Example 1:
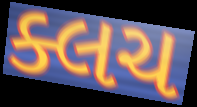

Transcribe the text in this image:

ક્લચ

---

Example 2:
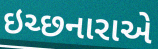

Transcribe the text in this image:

ઇચ્છનારાએ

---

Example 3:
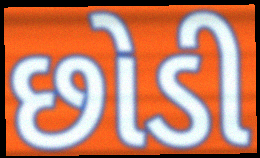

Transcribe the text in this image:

છોડી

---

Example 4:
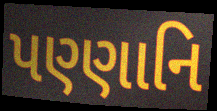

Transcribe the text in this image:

પણ્ણાનિ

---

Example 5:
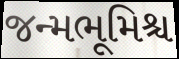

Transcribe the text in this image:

જન્મભૂમિશ્ચ